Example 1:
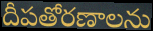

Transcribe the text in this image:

దీపతోరణాలను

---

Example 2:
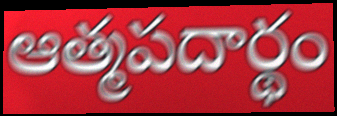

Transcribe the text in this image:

ఆత్మపదార్థం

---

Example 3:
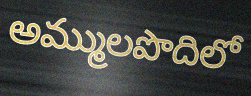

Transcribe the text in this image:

అమ్ములపొదిలో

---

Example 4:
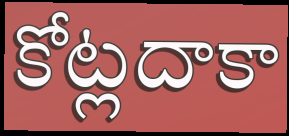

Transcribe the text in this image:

కోట్లదాకా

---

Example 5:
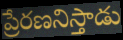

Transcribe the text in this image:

ప్రేరణనిస్తాడు